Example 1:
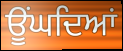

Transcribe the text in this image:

ਊਂਘਦਿਆਂ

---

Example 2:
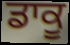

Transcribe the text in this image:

ਡਾਕੂ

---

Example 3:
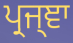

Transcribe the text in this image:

ਪ੍ਰਜ੍ਞਾ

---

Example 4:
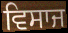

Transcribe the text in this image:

ਵਿਸਾਜ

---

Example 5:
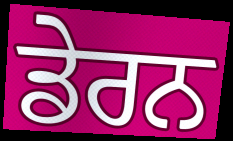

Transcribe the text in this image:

ਡੇਰਨ